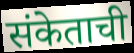
संकेताची